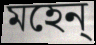
মহেন্